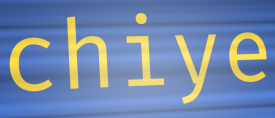
chiye